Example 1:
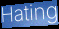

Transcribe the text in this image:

Hating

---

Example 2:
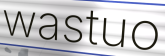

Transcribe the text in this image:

wastuo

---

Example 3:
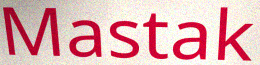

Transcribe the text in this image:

Mastak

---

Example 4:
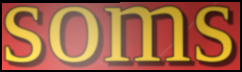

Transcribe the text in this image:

soms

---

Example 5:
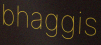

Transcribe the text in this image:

bhaggis